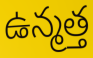
ఉన్మత్త